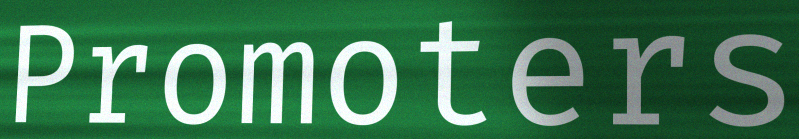
Promoters